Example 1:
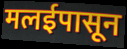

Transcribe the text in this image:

मलईपासून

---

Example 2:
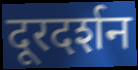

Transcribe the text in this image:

दूरदर्शन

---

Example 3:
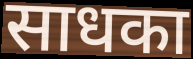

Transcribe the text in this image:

साधका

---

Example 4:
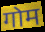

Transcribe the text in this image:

गोम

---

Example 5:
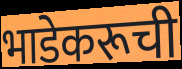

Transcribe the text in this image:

भाडेकरूची